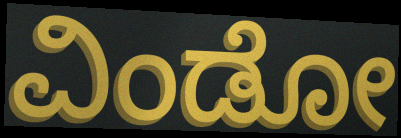
ವಿಂಡೋ